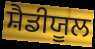
ਸ਼ੈਡੀਯੂਲ